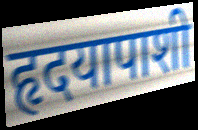
हृदयापाशी